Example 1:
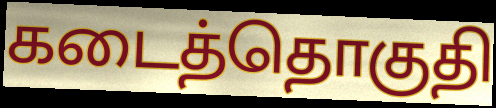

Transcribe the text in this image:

கடைத்தொகுதி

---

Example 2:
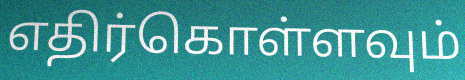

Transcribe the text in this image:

எதிர்கொள்ளவும்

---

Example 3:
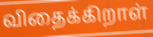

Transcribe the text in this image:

விதைக்கிறாள்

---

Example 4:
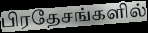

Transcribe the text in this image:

பிரதேசங்களில்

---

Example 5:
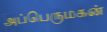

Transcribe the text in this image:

அப்பெருமகன்